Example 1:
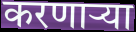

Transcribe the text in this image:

करणार्‍या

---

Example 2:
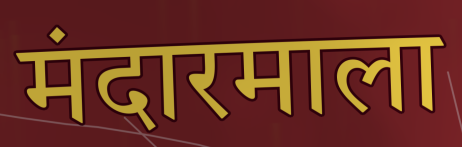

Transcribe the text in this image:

मंदारमाला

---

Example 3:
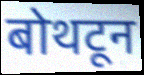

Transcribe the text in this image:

बोथटून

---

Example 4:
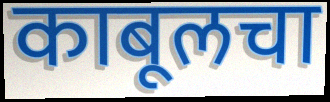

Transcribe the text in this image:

काबूलचा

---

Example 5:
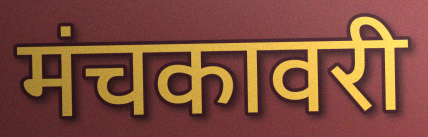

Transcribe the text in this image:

मंचकावरी